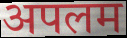
अपलम